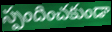
స్పందించకుండా